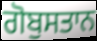
ਗੋਬੁਸਤਾਨ